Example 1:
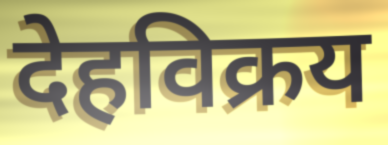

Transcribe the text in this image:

देहविक्रय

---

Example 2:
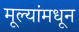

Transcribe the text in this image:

मूल्यांमधून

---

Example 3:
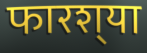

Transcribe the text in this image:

फारश्या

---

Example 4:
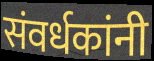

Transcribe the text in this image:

संवर्धकांनी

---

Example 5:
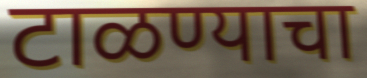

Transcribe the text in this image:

टाळण्याचा